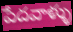
పేదవాళ్ళు